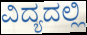
ವಿದ್ಯದಲ್ಲಿ